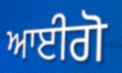
ਆਈਗੋ